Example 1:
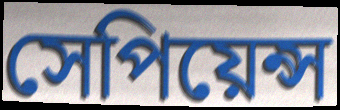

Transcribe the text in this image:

সেপিয়েন্স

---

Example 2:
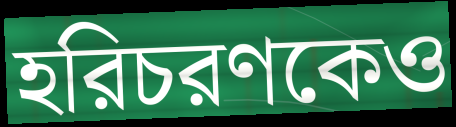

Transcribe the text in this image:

হরিচরণকেও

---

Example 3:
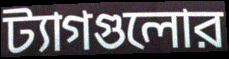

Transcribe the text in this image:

ট্যাগগুলোর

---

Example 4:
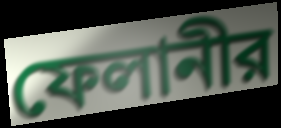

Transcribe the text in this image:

ফেলানীর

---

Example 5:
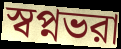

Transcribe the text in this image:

স্বপ্নভরা